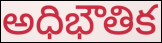
అధిభౌతిక